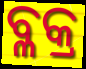
ବ୍ଳକ୍ର